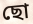
ছো